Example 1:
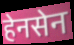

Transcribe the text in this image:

हेनसेन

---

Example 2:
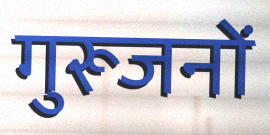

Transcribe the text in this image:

गुरूजनों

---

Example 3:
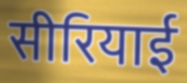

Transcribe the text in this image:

सीरियाई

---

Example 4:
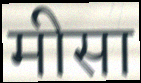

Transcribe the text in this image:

मीसा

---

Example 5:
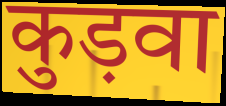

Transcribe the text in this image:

कुड़वा